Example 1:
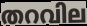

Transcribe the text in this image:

തറവില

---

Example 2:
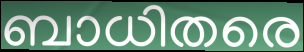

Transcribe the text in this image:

ബാധിതരെ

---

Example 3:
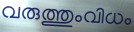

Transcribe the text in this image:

വരുത്തുംവിധം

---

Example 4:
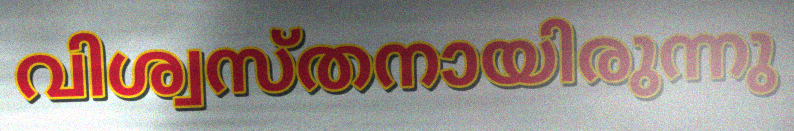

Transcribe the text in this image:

വിശ്വസ്തനായിരുന്നു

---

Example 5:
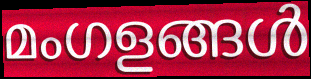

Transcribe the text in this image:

മംഗളങ്ങൾ